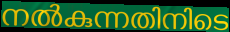
നൽകുന്നതിനിടെ